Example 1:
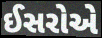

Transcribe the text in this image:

ઈસરોએ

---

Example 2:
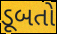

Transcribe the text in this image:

ડૂબતો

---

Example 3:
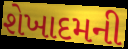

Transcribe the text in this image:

શેખાદમની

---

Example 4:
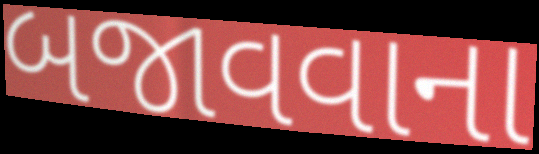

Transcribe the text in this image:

બજાવવાના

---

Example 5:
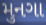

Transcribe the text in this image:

મુનગા